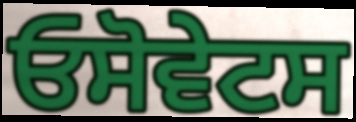
ਓਸੋਵੇਟਸ